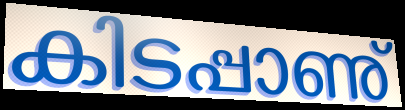
കിടപ്പാണു്